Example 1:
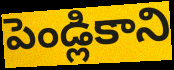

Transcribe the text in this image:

పెండ్లికాని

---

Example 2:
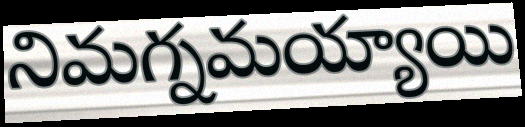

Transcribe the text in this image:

నిమగ్నమయ్యాయి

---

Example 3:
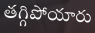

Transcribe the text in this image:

తగ్గిపోయారు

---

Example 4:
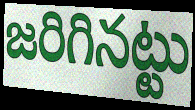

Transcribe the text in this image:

జరిగినట్టు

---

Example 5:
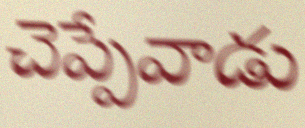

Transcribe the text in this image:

చెప్పేవాడు